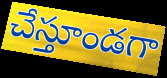
చేస్తూండగా